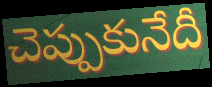
చెప్పుకునేదీ